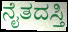
ನೈತದಸ್ತಿ